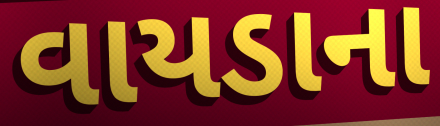
વાયડાના